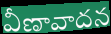
వీణావాదన